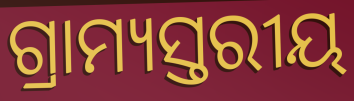
ଗ୍ରାମ୍ୟସ୍ତରୀୟ